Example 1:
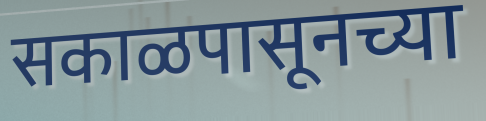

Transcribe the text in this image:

सकाळपासूनच्या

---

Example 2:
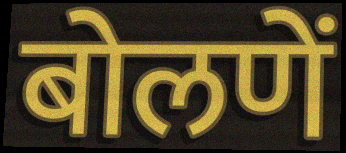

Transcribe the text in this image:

बोलणें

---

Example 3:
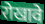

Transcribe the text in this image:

रोखावे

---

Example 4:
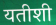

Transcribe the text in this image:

यतीशी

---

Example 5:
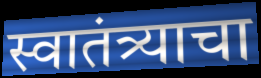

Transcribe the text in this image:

स्‍वातंत्र्याचा